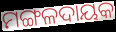
ମଙ୍ଗଳଦାୟକ